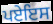
ਪਏਇਸ